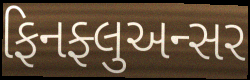
ફિનફ્લુઅન્સર